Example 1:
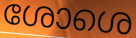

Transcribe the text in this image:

ശോശെ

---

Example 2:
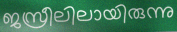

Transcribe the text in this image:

ജസ്രീലിലായിരുന്നു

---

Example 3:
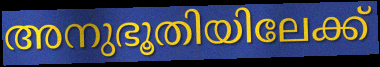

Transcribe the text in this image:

അനുഭൂതിയിലേക്ക്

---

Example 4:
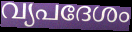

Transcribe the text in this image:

വ്യപദേശം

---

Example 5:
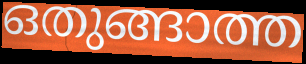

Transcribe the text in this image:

ഒതുങ്ങാത്ത